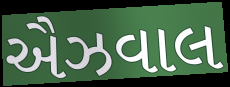
ઐઝવાલ